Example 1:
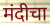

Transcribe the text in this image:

मंदीचा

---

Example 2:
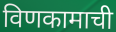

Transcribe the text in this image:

विणकामाची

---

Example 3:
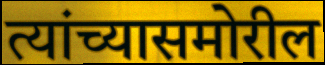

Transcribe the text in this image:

त्यांच्यासमोरील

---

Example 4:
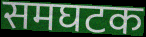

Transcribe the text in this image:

समघटक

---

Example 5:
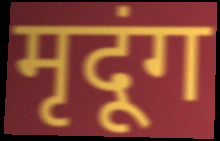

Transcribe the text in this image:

मृदूंग